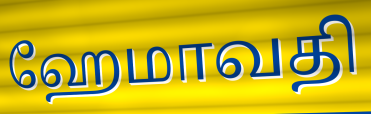
ஹேமாவதி